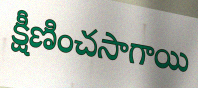
క్షీణించసాగాయి